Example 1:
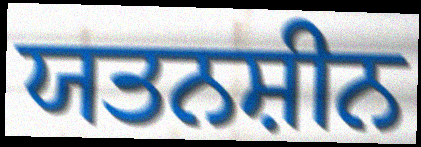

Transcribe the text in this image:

ਯਤਨਸ਼ੀਨ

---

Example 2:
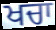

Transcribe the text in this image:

ਖਚਾ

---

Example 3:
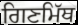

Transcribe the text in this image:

ਗਿਣਮਿੱਥ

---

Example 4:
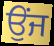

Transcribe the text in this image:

ਉੰਜ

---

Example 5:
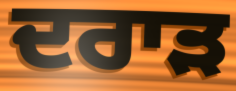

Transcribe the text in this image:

ਦਰਾੜ